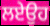
ਲਏਉਹ